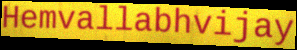
Hemvallabhvijay